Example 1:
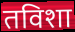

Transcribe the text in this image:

तविशा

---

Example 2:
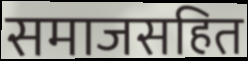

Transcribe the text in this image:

समाजसहित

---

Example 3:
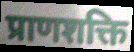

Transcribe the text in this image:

प्राणशक्ति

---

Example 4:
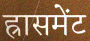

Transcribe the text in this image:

ह्रासमेंट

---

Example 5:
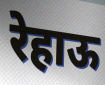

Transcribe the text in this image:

रेहाऊ